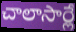
చాలాసార్లే